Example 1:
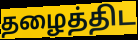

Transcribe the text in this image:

தழைத்திட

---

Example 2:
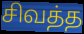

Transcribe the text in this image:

சிவத்த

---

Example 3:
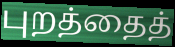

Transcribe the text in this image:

புறத்தைத்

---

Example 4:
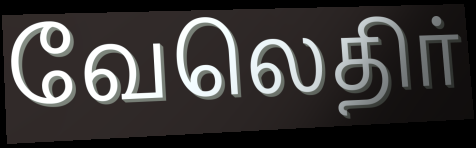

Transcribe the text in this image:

வேலெதிர்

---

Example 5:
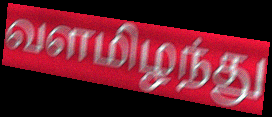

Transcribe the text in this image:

வளமிழந்து